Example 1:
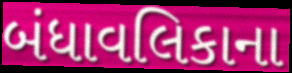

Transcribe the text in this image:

બંધાવલિકાના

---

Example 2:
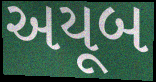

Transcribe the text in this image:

અયૂબ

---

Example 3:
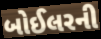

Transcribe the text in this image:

બોઈલરની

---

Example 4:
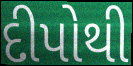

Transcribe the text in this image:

દીપોથી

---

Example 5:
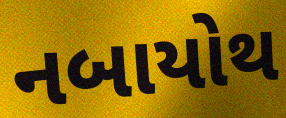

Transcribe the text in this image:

નબાયોથ